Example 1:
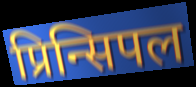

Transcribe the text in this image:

प्रिन्सिपल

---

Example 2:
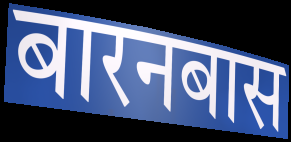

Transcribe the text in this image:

बारनबास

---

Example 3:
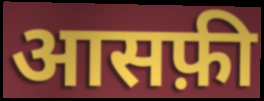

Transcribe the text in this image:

आसफ़ी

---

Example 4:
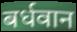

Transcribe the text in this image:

बर्धवान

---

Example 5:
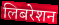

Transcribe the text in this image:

लिबरेशन